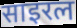
साइरल